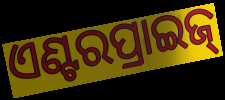
ଏଣ୍ଟରପ୍ରାଇଜ୍